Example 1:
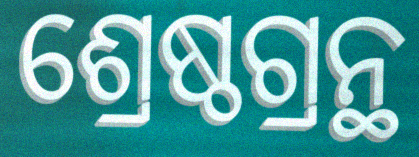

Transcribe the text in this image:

ଶ୍ରେଷ୍ଠଗ୍ରନ୍ଥ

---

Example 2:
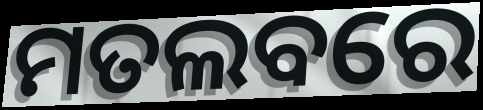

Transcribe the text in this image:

ମତଲବରେ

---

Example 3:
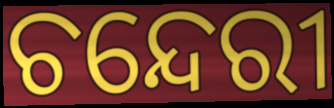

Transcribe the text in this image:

ଚନ୍ଦେରୀ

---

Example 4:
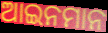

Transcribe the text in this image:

ଆଇନମାନ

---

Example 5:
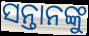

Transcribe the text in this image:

ସନ୍ତାନଙ୍କୁ